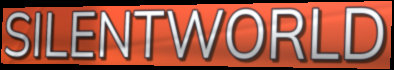
SILENTWORLD